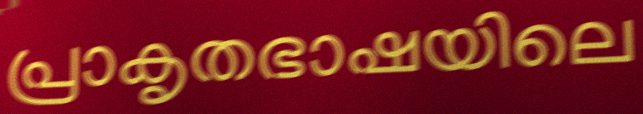
പ്രാകൃതഭാഷയിലെ